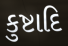
કુષ્ટાદિ